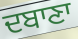
ਦਬਾਣਾ